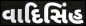
વાદિસિંહ